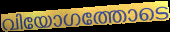
വിയോഗത്തോടെ